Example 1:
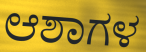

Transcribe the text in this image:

ಆಶಾಗಳ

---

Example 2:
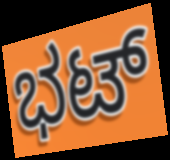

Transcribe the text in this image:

ಭಟ್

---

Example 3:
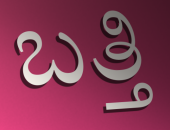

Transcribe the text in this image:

ಬತ್ತಿ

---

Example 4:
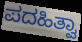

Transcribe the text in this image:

ಪದಹಿತ್ವಾ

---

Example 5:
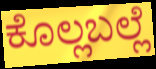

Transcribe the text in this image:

ಕೊಲ್ಲಬಲ್ಲೆ